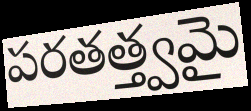
పరతత్త్వమై